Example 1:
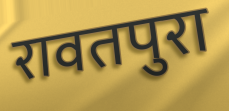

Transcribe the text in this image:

रावतपुरा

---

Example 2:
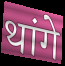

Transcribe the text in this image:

थांगे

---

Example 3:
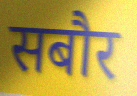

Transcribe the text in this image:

सबौर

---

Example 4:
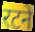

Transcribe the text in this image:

रटने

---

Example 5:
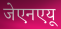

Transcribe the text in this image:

जेएनएयू